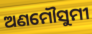
ଅଣମୌସୁମୀ